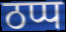
ठप्प